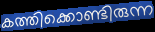
കത്തിക്കൊണ്ടിരുന്ന